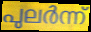
പുലർന്ന്